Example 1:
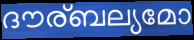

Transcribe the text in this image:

ദൗര്ബല്യമോ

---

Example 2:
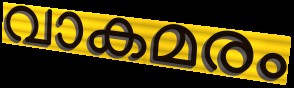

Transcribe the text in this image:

വാകമരം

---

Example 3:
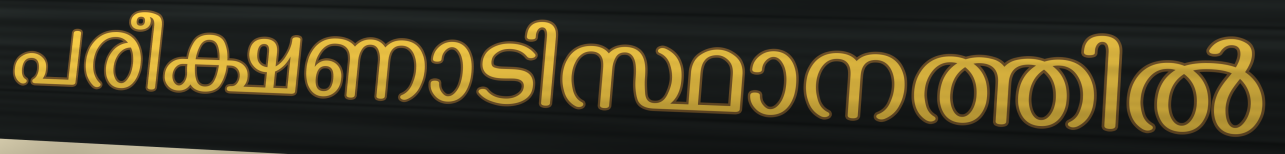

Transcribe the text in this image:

പരീക്ഷണാടിസ്ഥാനത്തിൽ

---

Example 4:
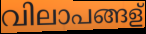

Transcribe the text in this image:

വിലാപങ്ങള്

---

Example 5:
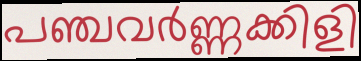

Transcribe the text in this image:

പഞ്ചവർണ്ണക്കിളി